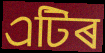
এটিৰ